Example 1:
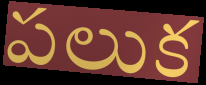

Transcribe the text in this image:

పలుక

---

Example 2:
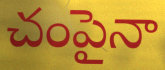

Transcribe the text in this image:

చంపైనా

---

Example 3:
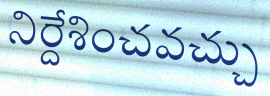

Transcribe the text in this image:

నిర్దేశించవచ్చు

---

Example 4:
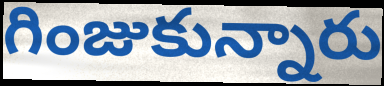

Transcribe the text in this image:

గింజుకున్నారు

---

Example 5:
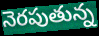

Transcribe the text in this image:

నెరపుతున్న